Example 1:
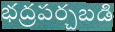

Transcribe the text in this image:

భద్రపర్చబడి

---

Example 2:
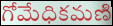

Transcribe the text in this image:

గోమేధికమణి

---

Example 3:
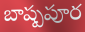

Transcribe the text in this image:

బాష్పపూర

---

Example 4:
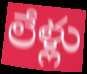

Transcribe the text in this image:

లేళ్లు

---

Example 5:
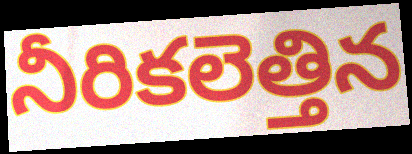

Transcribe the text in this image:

నీరికలెత్తిన